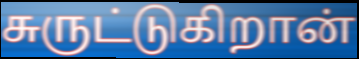
சுருட்டுகிறான்